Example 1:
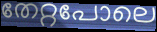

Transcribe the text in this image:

തേറ്റപോലെ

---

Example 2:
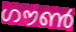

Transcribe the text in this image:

ഗൗൺ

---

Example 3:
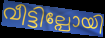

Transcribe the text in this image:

വീട്ടില്പോയി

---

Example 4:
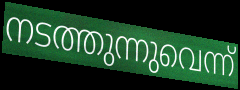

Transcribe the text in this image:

നടത്തുന്നുവെന്ന്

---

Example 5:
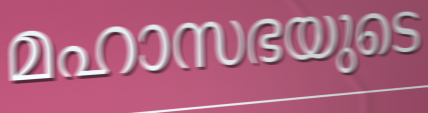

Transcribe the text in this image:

മഹാസഭയുടെ